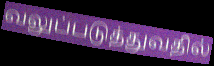
வலுப்படுத்துவதில்